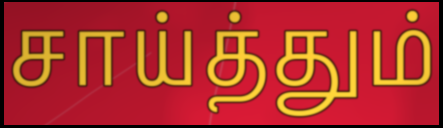
சாய்த்தும்